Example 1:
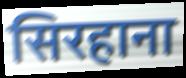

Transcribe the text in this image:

सिरहाना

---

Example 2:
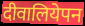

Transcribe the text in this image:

दीवालियेपन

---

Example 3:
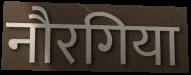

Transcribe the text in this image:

नौरगिया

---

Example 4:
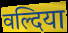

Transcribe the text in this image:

वल्दिया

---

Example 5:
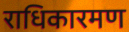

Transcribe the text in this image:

राधिकारमण